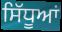
ਸਿੱਧੂਆਂ